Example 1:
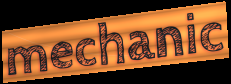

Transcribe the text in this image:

mechanic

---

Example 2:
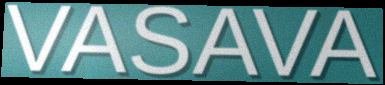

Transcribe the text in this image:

VASAVA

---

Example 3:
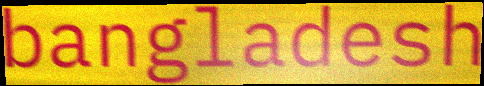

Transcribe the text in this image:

bangladesh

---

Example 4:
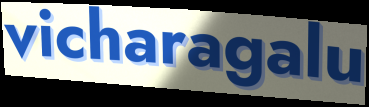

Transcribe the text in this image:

vicharagalu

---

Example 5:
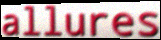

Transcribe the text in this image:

allures